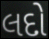
લદો